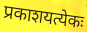
प्रकाशयत्येकः